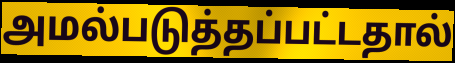
அமல்படுத்தப்பட்டதால்